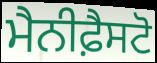
ਮੈਨੀਫ਼ੈਸਟੋ